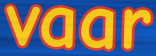
vaar